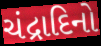
ચંદ્રાદિનો